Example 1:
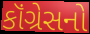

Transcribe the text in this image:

કૉંગ્રેસનો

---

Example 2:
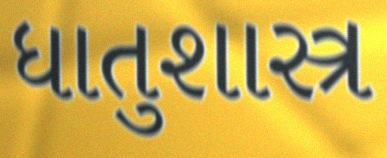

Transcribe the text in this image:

ધાતુશાસ્ત્ર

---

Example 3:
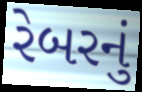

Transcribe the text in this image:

રેબરનું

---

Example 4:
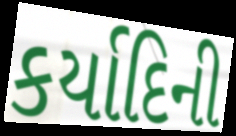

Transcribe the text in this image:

કર્યાદિની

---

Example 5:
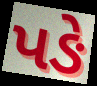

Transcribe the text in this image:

પઙે